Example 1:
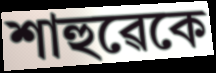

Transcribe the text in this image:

শাহুৱেকে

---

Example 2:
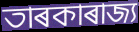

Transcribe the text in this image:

তাৰকাৰাজ্য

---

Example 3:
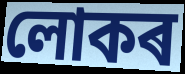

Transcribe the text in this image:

লোকৰ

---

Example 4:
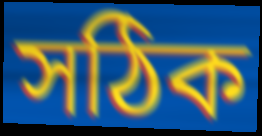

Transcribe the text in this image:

সঠিক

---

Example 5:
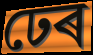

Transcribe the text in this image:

ঢেৰ